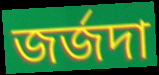
জর্জদা